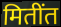
मितींत